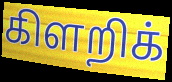
கிளறிக்